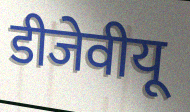
डीजेवीयू